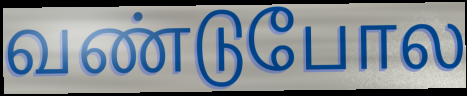
வண்டுபோல